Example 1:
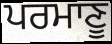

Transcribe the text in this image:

ਪਰਮਾਣੂ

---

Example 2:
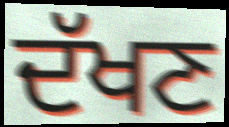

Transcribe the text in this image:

ਦੱਖਣ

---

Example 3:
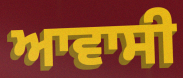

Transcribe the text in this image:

ਆਵਾਸੀ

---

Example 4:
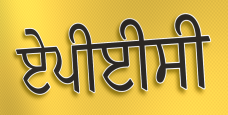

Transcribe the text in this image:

ਏਪੀਈਸੀ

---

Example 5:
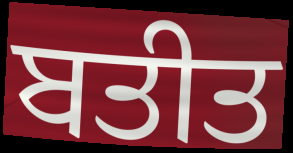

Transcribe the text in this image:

ਬਤੀਤ